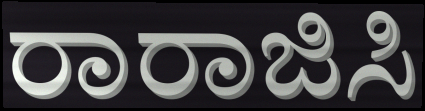
ರಾರಾಜಿಸಿ